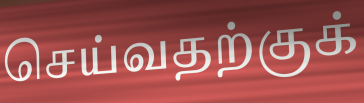
செய்வதற்குக்